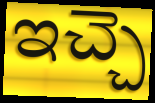
ఇచ్చె